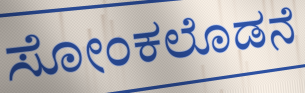
ಸೋಂಕಲೊಡನೆ